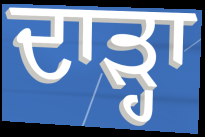
ਦਾੜ੍ਹਾ